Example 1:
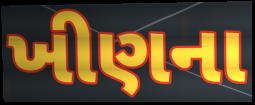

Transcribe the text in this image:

ખીણના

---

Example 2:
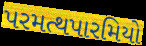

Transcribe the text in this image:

પરમત્થપારમિયો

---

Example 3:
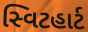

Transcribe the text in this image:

સ્વિટહાર્ટ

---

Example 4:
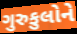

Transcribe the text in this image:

ગુરુકુલોને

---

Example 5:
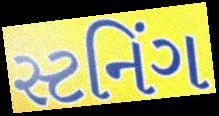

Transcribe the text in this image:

સ્ટનિંગ